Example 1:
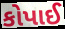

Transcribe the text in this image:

કોપાઈ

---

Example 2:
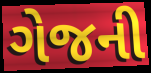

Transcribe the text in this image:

ગેજની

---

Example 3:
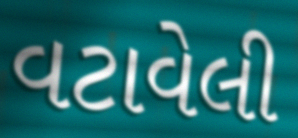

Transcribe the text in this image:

વટાવેલી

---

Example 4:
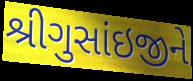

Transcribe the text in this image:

શ્રીગુસાંઇજીને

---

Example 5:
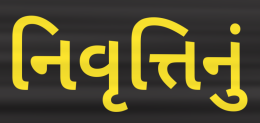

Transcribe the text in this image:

નિવૃત્તિનું